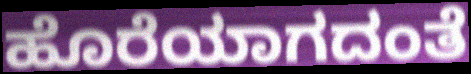
ಹೊರೆಯಾಗದಂತೆ